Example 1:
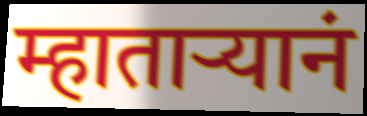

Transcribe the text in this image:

म्हातार्‍यानं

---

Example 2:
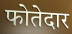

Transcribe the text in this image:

फोतेदार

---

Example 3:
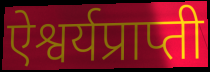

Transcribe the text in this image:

ऐश्वर्यप्राप्ती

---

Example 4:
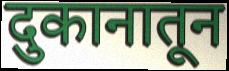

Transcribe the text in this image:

दुकानातून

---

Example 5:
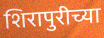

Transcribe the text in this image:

शिरापुरीच्या